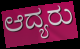
ಆದ್ಯರು